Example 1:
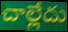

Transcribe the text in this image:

చాల్లేదు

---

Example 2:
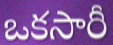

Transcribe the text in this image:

ఒకసారీ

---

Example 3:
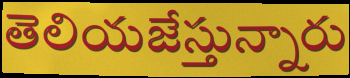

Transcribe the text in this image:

తెలియజేస్తున్నారు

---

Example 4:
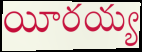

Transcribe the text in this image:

యీరయ్య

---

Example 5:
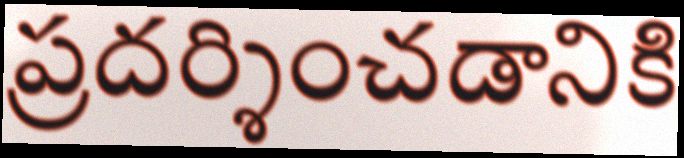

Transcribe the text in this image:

ప్రదర్శించడానికి